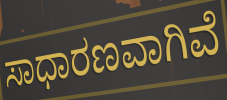
ಸಾಧಾರಣವಾಗಿವೆ